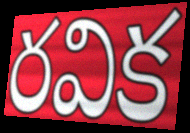
రవిక